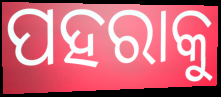
ପହରାକୁ